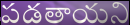
పడతాయని